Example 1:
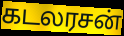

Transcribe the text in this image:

கடலரசன்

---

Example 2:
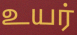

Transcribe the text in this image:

உயர்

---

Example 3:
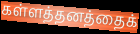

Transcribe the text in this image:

கள்ளத்தனத்தைக்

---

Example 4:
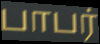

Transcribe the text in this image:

பாபர்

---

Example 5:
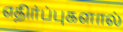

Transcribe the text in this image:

எதிர்ப்புகளால்